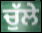
ਚੁੱਲੇ